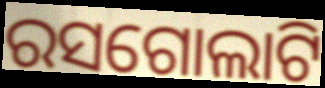
ରସଗୋଲାଟି